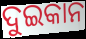
ଦୁଇକାନ